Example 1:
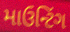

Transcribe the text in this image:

માઉન્ટિંગ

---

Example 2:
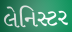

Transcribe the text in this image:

લેનિસ્ટર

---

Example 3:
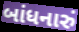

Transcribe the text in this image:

બાંધનારું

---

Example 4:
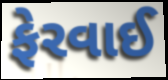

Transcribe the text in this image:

ફેરવાઈ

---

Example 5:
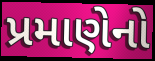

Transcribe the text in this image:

પ્રમાણેનો